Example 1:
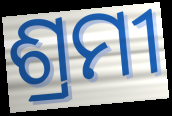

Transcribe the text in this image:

ଶ୍ରମୀ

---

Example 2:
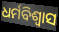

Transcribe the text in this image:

ଧର୍ମବିଶ୍ୱାସ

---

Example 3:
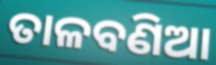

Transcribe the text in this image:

ତାଳବଣିଆ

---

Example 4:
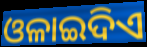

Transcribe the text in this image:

ଓଳାଇଦିଏ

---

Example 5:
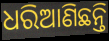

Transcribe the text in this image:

ଧରିଆଣିଛନ୍ତି